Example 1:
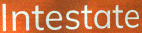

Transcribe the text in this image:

Intestate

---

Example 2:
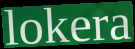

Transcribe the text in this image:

lokera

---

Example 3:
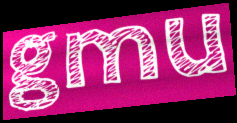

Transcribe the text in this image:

gmu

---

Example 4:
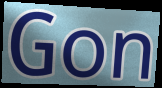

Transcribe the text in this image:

Gon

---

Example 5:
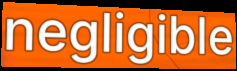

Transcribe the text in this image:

negligible